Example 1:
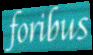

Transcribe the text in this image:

foribus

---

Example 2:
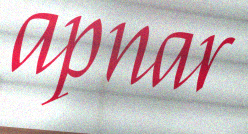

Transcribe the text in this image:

apnar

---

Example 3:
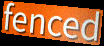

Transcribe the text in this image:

fenced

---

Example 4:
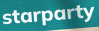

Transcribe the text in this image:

starparty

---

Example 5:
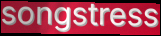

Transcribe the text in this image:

songstress